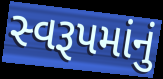
સ્વરૂપમાંનું